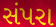
સંપરા